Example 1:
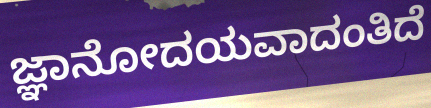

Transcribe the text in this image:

ಜ್ಞಾನೋದಯವಾದಂತಿದೆ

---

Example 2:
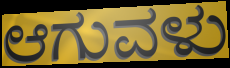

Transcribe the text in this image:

ಆಗುವಳು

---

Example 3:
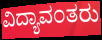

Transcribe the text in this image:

ವಿದ್ಯಾವಂತರು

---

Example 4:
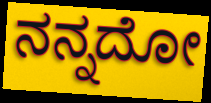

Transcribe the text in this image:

ನನ್ನದೋ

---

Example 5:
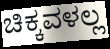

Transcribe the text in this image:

ಚಿಕ್ಕವಳಲ್ಲ